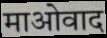
माओवाद